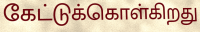
கேட்டுக்கொள்கிறது